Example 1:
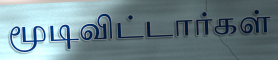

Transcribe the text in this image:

மூடிவிட்டார்கள்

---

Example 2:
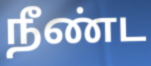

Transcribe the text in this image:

நீண்ட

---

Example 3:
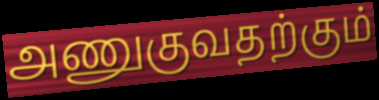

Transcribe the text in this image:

அணுகுவதற்கும்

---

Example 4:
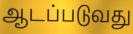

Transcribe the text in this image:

ஆடப்படுவது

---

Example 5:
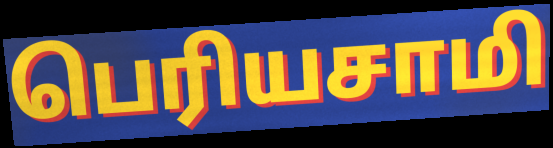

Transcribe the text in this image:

பெரியசாமி